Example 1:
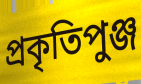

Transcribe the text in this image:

প্রকৃতিপুঞ্জ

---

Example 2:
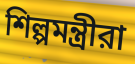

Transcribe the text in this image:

শিল্পমন্ত্রীরা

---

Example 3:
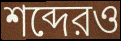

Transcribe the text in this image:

শব্দেরও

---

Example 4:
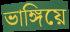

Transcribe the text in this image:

ভাঙ্গিয়ে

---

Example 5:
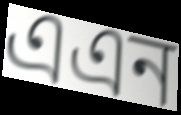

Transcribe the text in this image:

এএন